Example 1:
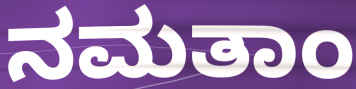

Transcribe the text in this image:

ನಮತಾಂ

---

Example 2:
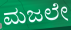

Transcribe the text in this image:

ಮಜಲೇ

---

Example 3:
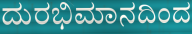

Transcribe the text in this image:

ದುರಭಿಮಾನದಿಂದ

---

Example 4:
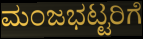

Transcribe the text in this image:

ಮಂಜಭಟ್ಟರಿಗೆ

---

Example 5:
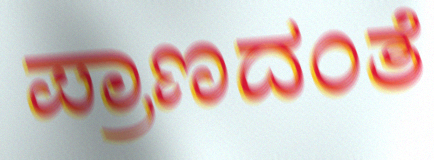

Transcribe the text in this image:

ಪ್ರಾಣದಂತೆ